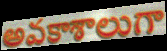
అవకాశాలుగా